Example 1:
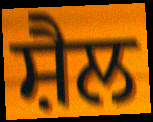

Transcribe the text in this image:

ਸ਼ੈਲ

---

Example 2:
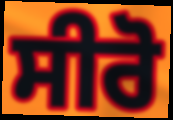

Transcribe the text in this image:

ਸੀਰੋ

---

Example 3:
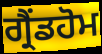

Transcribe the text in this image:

ਗ੍ਰੈਂਡਹੋਮ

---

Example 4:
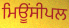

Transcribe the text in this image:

ਮਿਊਂਸੀਪਲ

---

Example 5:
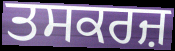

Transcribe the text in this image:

ਤਸਕਰਜ਼